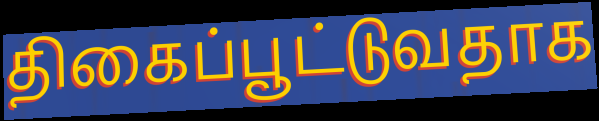
திகைப்பூட்டுவதாக